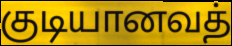
குடியானவத்